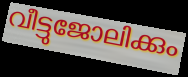
വീട്ടുജോലിക്കും